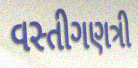
વસ્તીગણત્રી